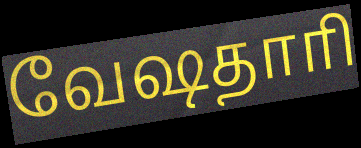
வேஷதாரி